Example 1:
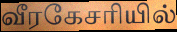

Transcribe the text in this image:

வீரகேசரியில்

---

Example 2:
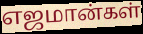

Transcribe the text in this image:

எஜமான்கள்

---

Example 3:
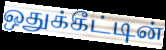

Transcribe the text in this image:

ஒதுக்கீட்டின்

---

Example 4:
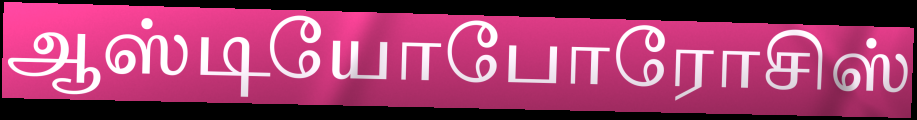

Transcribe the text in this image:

ஆஸ்டியோபோரோசிஸ்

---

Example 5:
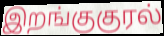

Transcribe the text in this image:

இறங்குகுரல்